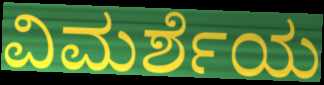
ವಿಮರ್ಶೆಯ